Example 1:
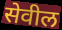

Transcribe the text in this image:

सेवील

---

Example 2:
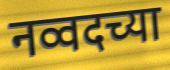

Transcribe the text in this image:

नव्वदच्या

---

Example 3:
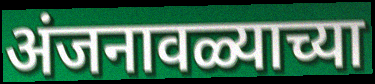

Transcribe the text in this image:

अंजनावळ्याच्या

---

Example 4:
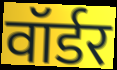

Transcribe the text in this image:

वॉर्डर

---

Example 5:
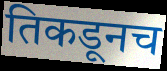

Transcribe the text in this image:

तिकडूनच